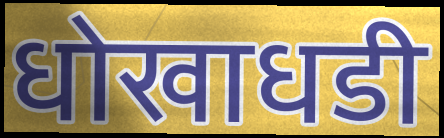
धोखाधडी